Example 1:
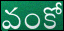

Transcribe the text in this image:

వంకో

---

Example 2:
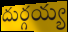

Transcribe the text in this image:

దుర్గయ్య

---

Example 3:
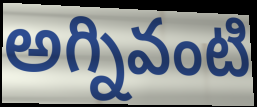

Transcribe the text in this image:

అగ్నివంటి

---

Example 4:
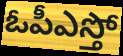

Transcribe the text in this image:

ఓపీఎస్తో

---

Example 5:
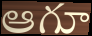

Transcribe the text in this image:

ఆగూ